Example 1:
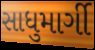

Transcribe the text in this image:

સાધુમાર્ગી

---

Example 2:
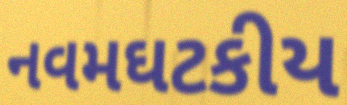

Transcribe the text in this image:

નવમઘટકીય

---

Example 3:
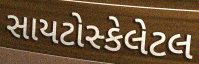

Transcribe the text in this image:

સાયટોસ્કેલેટલ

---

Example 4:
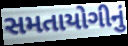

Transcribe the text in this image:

સમતાયોગીનું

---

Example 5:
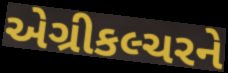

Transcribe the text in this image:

એગ્રીકલ્ચરને